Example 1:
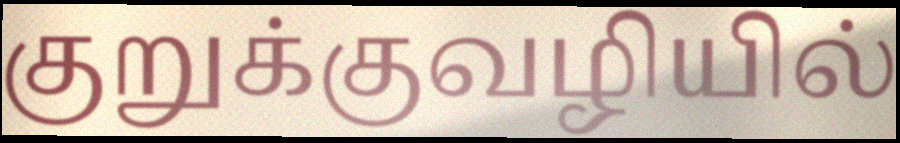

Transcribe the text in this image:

குறுக்குவழியில்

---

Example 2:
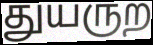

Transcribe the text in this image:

துயருற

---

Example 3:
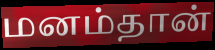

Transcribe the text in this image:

மனம்தான்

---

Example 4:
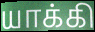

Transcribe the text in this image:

யாக்கி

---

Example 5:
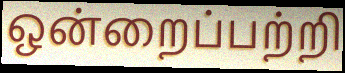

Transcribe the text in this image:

ஒன்றைப்பற்றி